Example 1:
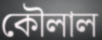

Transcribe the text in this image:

কৌলাল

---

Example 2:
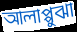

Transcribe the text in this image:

আলাপ্পুঝা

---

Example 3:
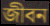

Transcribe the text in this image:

জীবন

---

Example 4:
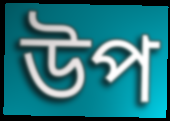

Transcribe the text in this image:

উপ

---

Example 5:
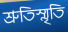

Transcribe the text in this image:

শ্রুতিস্মৃতি